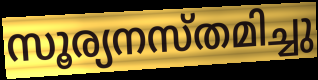
സൂര്യനസ്തമിച്ചു